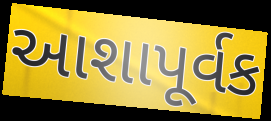
આશાપૂર્વક